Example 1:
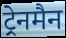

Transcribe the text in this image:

ट्रेनमैन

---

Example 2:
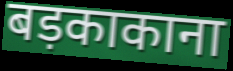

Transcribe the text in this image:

बड़काकाना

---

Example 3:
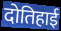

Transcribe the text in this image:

दोतिहाई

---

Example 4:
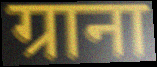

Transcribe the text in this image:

ग्राना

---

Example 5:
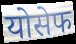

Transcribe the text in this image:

योसेफ